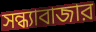
সন্ধ্যাবাজার